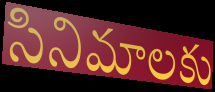
సినిమాలకు